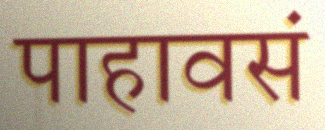
पाहावसं